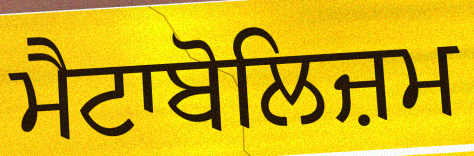
ਮੈਟਾਬੋਲਿਜ਼ਮ